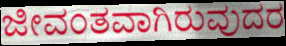
ಜೀವಂತವಾಗಿರುವುದರ